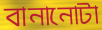
বানানোটা